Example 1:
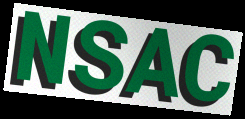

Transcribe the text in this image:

NSAC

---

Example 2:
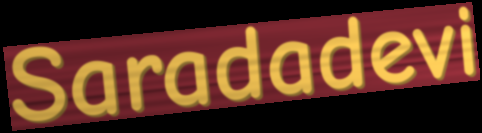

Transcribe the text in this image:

Saradadevi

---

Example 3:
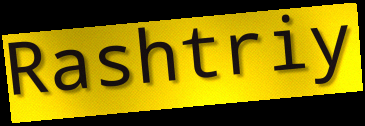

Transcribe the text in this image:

Rashtriy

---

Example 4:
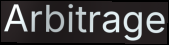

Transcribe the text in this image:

Arbitrage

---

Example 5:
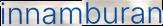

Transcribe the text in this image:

innamburan